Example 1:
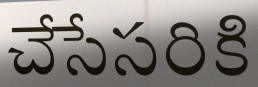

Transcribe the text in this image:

చేసేసరికి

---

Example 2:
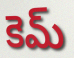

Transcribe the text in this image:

కెమ్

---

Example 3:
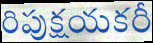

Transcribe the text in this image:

రిపుక్షయకరీ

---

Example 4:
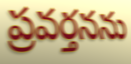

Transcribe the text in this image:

ప్రవర్తనను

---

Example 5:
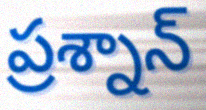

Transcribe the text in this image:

ప్రశ్నాన్